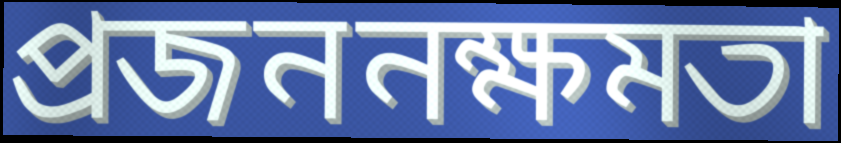
প্রজননক্ষমতা